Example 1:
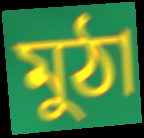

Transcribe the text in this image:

মুঠা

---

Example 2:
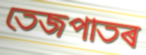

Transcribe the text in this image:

তেজপাতৰ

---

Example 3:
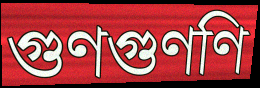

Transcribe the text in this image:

গুণগুণণি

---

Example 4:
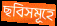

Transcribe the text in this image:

ছবিসমূহে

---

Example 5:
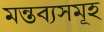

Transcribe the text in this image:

মন্তব্যসমূহ